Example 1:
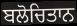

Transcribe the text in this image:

ਬਲੋਚਿਤਾਨ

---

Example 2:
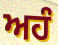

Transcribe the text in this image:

ਅਹੰ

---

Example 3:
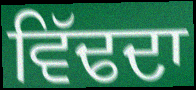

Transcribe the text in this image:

ਵਿੱਢਦਾ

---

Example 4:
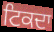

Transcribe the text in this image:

ਟਿਕਦਾ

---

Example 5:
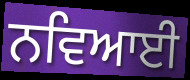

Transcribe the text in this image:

ਨਵਿਆਈ